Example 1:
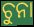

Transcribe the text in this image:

ଚୁନା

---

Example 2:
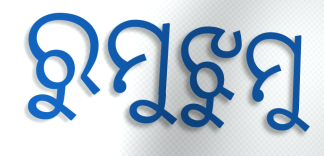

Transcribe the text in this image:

ରୁମୁଝୁମୁ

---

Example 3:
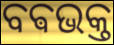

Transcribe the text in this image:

ବଵଭକ୍ତ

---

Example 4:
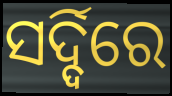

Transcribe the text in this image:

ସର୍ଦ୍ଦିରେ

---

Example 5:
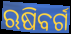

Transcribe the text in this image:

ଋଷିବର୍ଗ